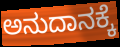
ಅನುದಾನಕ್ಕೆ